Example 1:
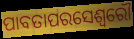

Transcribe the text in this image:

ପାବତାପରସେଶ୍ୱରୌ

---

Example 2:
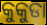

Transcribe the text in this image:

କୁକୁଡା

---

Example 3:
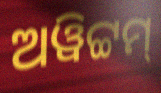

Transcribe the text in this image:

ଅୱିଟ୍ଟମ୍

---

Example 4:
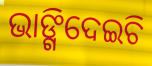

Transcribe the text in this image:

ଭାଙ୍ଗିଦେଇଚି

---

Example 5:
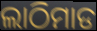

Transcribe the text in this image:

ଲାଠିମାଡ